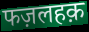
फज़लहक़